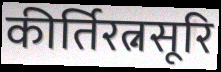
कीर्तिरत्नसूरि